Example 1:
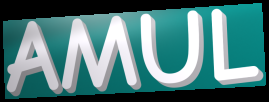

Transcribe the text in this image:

AMUL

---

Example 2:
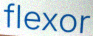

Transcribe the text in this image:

flexor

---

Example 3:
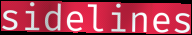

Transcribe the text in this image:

sidelines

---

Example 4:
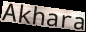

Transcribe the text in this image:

Akhara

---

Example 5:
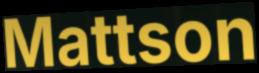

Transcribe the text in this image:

Mattson